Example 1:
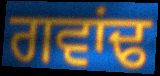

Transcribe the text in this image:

ਗਵਾਂਢ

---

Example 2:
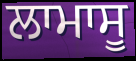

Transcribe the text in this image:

ਲਾਮਾਸੂ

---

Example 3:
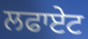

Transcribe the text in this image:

ਲਫਾਏਟ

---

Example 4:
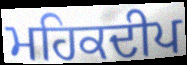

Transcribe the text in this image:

ਮਹਿਕਦੀਪ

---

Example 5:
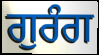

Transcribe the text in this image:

ਗੁਰੰਗ